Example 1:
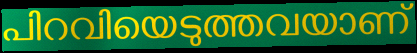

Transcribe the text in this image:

പിറവിയെടുത്തവയാണ്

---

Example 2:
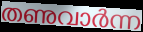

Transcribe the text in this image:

തണുവാർന്ന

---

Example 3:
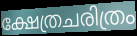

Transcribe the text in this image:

ക്ഷേത്രചരിത്രം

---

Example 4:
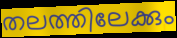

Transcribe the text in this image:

തലത്തിലേക്കും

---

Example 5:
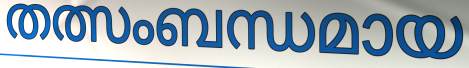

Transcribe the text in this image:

തത്സംബന്ധമായ